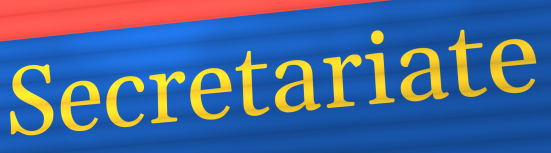
Secretariate